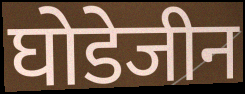
घोडेजीन